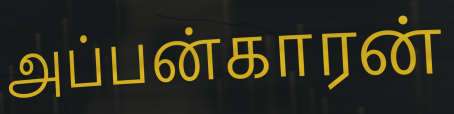
அப்பன்காரன்